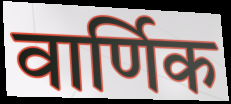
वार्णिक